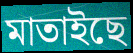
মাতাইছে